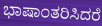
ಭಾಷಾಂತರಿಸಿದರೆ